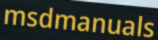
msdmanuals